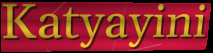
Katyayini